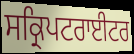
ਸਕ੍ਰਿਪਟਰਾਈਟਰ